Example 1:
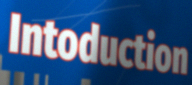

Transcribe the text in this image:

Intoduction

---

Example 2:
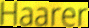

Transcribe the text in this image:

Haarer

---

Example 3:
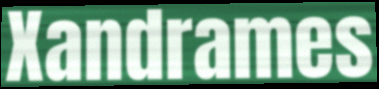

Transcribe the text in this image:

Xandrames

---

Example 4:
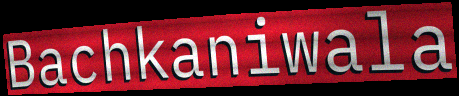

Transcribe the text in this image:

Bachkaniwala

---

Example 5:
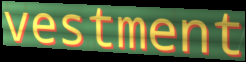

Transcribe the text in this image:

vestment